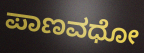
ಪಾಣವಧೋ